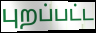
புறப்பட்ட